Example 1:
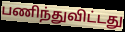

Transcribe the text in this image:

பணிந்துவிட்டது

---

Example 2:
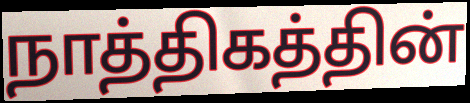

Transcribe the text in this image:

நாத்திகத்தின்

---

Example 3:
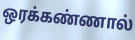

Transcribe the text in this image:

ஒரக்கண்ணால்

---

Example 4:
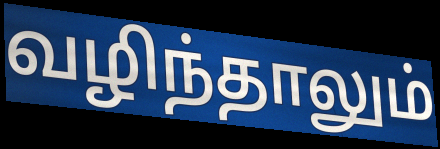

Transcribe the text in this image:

வழிந்தாலும்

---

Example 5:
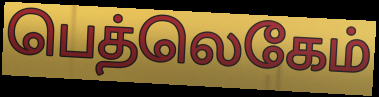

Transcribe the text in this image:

பெத்லெகேம்